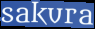
sakura